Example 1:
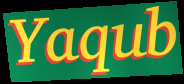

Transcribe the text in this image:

Yaqub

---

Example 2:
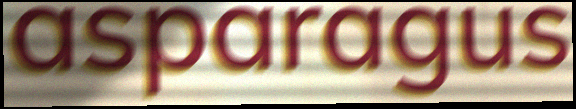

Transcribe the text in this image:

asparagus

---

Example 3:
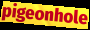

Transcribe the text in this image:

pigeonhole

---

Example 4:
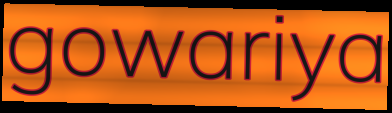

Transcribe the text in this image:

gowariya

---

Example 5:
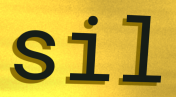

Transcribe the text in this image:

sil